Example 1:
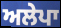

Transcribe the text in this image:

ਅਲੇਪਾ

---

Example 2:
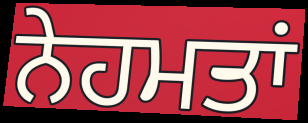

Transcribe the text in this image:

ਨੇਹਮਤਾਂ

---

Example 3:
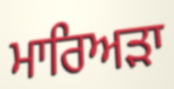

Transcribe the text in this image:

ਮਾਰਿਅੜਾ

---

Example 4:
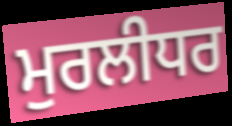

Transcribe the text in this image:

ਮੁਰਲੀਧਰ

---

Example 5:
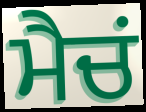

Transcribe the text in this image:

ਮੈਚਂ